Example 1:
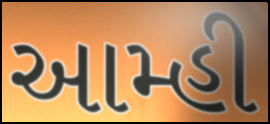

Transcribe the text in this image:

આમ્હી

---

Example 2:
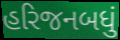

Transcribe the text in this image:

હરિજનબધું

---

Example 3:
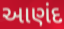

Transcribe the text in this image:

આણંદ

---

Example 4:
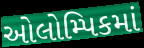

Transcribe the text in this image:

ઓલોમ્પિકમાં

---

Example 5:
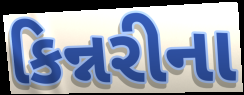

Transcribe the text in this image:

કિન્નરીના